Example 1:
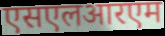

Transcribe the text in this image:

एसएलआरएम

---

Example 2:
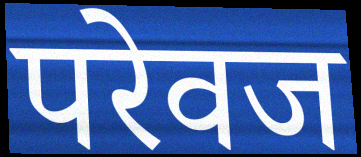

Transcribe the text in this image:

परेवज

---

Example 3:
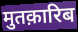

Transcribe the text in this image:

मुतक़ारिब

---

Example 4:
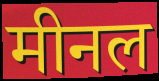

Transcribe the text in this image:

मीनल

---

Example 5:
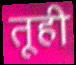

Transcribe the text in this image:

तूही